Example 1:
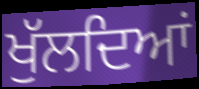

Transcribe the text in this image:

ਖੁੱਲਦਿਆਂ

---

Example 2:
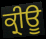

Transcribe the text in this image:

ਕ੍ਰੀਊ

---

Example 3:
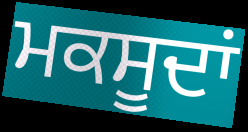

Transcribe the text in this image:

ਮਕਸੂਦਾਂ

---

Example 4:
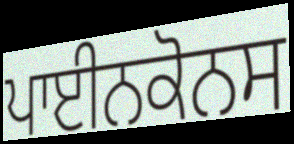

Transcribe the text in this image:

ਪਾਈਨਕੋਨਸ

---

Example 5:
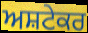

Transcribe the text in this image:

ਅਸ਼ਟੇਕਰ